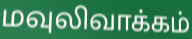
மவுலிவாக்கம்